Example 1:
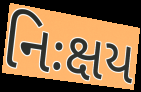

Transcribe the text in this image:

નિઃક્ષય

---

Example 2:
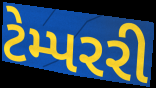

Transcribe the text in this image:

ટેમ્પરરી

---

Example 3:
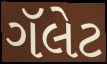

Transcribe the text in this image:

ગૅલેટ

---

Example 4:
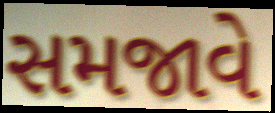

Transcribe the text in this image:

સમજાવે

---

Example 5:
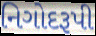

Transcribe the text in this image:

નિગોદરૂપી